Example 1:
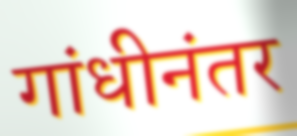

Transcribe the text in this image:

गांधीनंतर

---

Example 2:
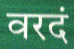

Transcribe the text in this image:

वरदं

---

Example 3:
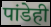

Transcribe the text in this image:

पांडेही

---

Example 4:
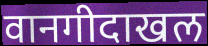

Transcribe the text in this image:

वानगीदाखल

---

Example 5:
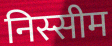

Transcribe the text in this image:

निस्सीम